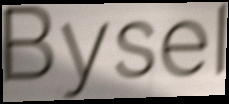
Bysel